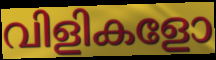
വിളികളോ